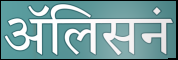
ॲलिसनं